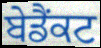
ਬੇਡੈਂਕਟ